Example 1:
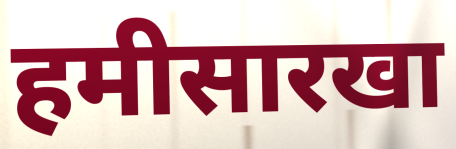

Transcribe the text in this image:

हमीसारखा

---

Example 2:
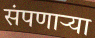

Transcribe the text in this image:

संपणार्‍या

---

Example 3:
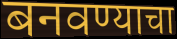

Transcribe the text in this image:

बनवण्याचा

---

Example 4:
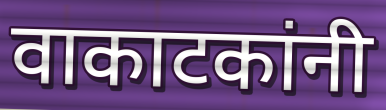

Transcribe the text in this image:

वाकाटकांनी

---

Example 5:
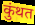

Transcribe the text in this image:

कुंथत